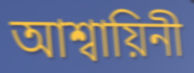
আশ্বায়িনী